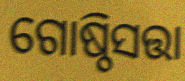
ଗୋଷ୍ଠିସତ୍ତା